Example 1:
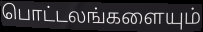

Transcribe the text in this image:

பொட்டலங்களையும்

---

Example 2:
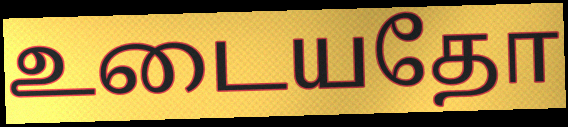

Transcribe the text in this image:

உடையதோ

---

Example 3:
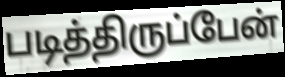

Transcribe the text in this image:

படித்திருப்பேன்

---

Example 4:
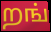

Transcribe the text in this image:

றங்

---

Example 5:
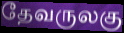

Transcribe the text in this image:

தேவருலகு